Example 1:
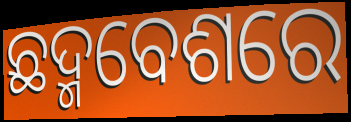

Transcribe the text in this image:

ଛଦ୍ମବେଶରେ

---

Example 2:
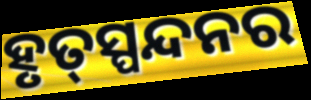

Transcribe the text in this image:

ହୃତ୍‌ସ୍ପନ୍ଦନର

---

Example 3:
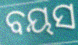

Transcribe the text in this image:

ବୟସ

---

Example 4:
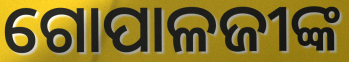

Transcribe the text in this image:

ଗୋପାଳଜୀଙ୍କ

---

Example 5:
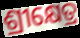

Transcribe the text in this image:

ଶ୍ରୀକ୍ଷେତ୍ର